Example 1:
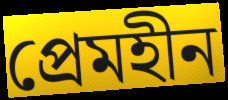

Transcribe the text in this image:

প্রেমহীন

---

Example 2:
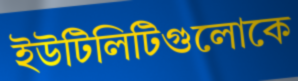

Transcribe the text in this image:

ইউটিলিটিগুলোকে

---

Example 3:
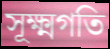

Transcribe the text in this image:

সূক্ষ্মগতি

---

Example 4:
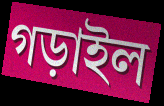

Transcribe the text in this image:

গড়াইল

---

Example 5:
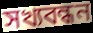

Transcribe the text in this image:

সখ্যবন্ধন